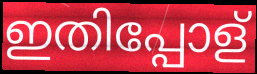
ഇതിപ്പോള്